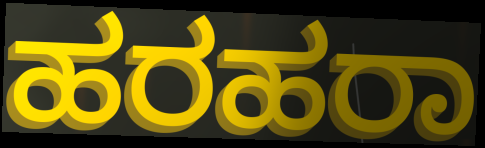
ಹರಹರಾ